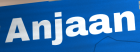
Anjaan